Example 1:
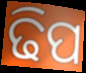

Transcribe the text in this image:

ଢିପ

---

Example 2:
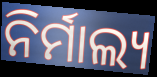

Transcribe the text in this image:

ନିର୍ମାଲ୍ୟ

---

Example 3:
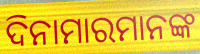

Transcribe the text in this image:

ଦିନାମାରମାନଙ୍କ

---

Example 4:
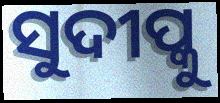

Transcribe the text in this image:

ସୁଦୀପ୍କୁ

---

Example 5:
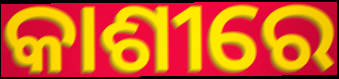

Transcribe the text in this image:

କାଶୀରେ